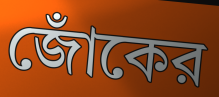
জোঁকের